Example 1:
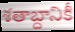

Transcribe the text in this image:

శతాబ్దానికీ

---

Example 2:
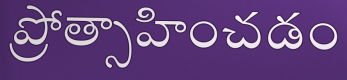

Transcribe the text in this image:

ప్రోత్సాహించడం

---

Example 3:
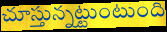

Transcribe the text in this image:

చూస్తున్నట్టుంటుంది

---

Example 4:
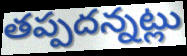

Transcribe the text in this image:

తప్పదన్నట్లు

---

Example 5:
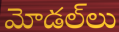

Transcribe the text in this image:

మోడల్‌లు